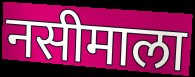
नसीमाला